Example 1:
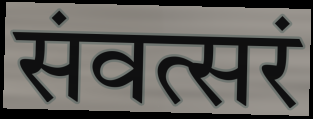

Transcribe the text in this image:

संवत्सरं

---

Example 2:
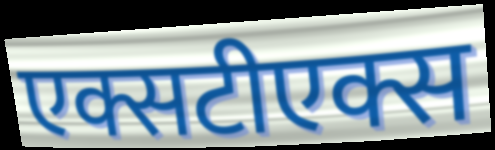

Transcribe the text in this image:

एक्सटीएक्स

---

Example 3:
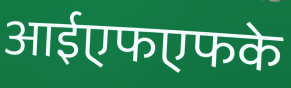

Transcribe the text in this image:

आईएफएफके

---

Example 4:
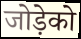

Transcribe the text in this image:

जोड़ेको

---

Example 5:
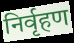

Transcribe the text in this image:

निर्वृहण